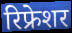
रिफ्रेशर